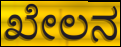
ಖೇಲನ